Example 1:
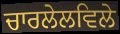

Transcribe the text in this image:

ਚਾਰਲੇਲਵਿਲੇ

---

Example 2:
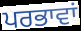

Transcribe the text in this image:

ਪਰਭਾਵਾਂ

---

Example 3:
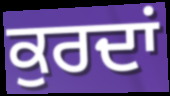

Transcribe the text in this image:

ਕੁਰਦਾਂ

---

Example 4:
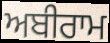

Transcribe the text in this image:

ਅਬੀਰਾਮ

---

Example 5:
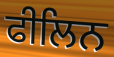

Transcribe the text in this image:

ਫੀਲਿਨ